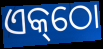
ଏକ୍‌ଠୋ